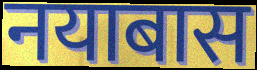
नयाबास